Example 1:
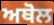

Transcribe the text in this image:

ਅਥੋਲ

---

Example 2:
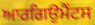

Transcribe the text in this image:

ਆਰਗਿਉਮੈਂਟਸ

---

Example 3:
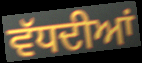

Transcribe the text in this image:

ਵੱਧਦੀਆਂ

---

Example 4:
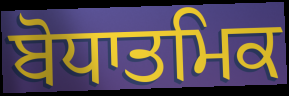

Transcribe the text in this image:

ਬੋਧਾਤਮਿਕ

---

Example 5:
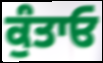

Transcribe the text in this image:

ਕੁੰਤਾਓ